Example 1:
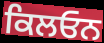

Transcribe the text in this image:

ਕਿਲਓਨ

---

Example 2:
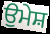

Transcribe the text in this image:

ਉਮੇਸ਼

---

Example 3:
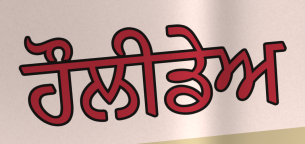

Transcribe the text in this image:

ਹੌਲੀਡੇਅ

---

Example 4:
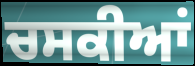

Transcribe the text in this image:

ਚਸਕੀਆਂ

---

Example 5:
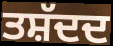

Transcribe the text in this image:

ਤਸ਼ੱਦਦ